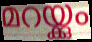
മറയ്ക്കും